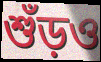
শুঁড়ও